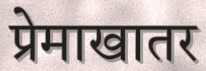
प्रेमाखातर